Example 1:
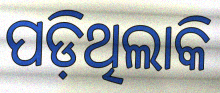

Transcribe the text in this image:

ପଡ଼ିଥିଲାକି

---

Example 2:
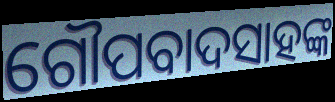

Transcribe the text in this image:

ଗୌପବାଦସାହଙ୍କ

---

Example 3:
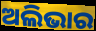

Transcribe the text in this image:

ଅଲିଭାର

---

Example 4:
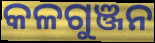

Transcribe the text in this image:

କଳଗୁଞ୍ଜନ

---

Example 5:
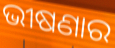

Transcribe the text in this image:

ଭୀଷଣାର